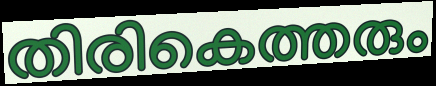
തിരികെത്തരും